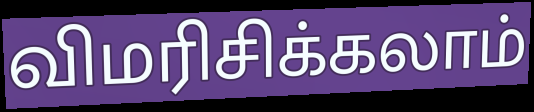
விமரிசிக்கலாம்